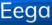
Eega